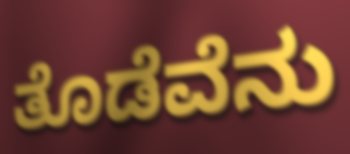
ತೊಡೆವೆನು